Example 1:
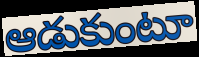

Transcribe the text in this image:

ఆడుకుంటూ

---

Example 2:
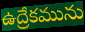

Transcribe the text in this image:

ఉద్రేకమును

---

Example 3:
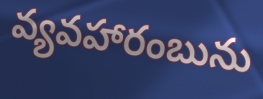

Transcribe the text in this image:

వ్యవహారంబును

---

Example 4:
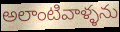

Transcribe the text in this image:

అలాంటివాళ్ళను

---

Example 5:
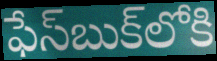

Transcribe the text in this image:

ఫేస్‌బుక్‌లోకి